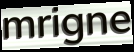
mrigne